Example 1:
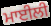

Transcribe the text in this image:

ਮਾਈਲੀ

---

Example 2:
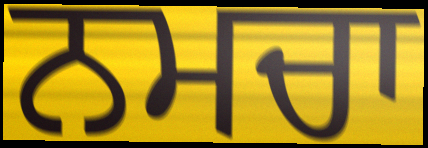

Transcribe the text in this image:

ਨਮਚਾ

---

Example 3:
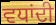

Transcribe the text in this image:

ਵਧਾਂਦੀ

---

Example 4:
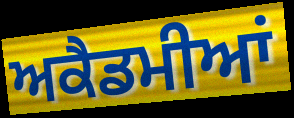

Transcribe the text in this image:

ਅਕੈਡਮੀਆਂ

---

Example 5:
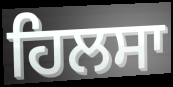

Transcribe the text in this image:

ਹਿਲਸਾ